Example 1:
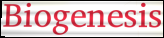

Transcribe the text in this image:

Biogenesis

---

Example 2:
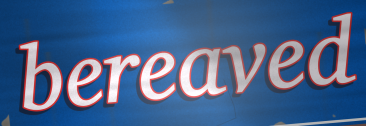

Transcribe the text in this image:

bereaved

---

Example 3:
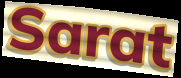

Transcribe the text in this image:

Sarat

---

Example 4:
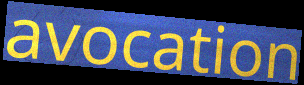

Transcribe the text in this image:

avocation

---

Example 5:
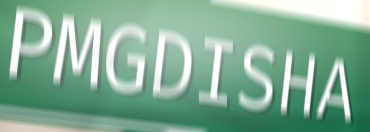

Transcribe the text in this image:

PMGDISHA